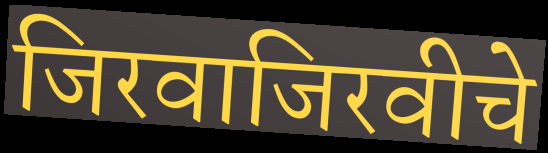
जिरवाजिरवीचे